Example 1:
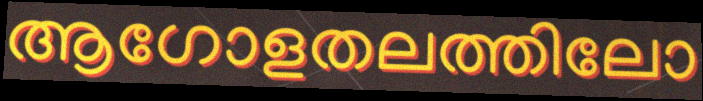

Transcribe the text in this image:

ആഗോളതലത്തിലോ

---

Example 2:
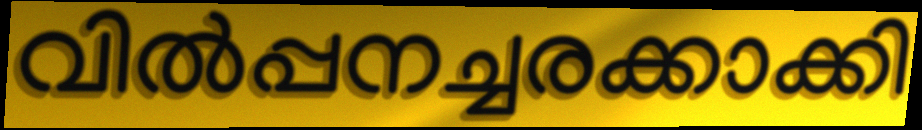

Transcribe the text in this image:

വിൽപ്പനച്ചരക്കാക്കി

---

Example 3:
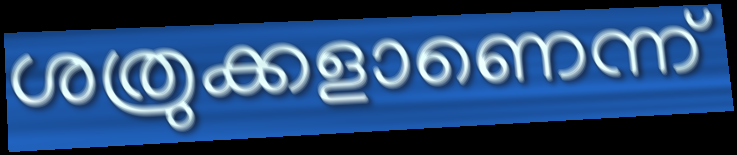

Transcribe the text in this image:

ശത്രുക്കളാണെന്ന്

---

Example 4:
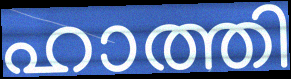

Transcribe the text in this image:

ഹാത്തി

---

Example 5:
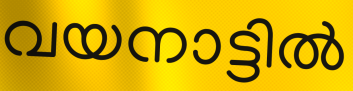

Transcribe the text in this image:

വയനാട്ടിൽ